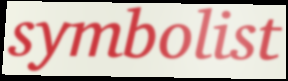
symbolist